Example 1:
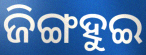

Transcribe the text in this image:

ଜିଙ୍ଗହୁଇ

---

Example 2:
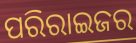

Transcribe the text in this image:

ପରିରାଇଜର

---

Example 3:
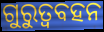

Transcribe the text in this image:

ଗୁରୁତ୍ୱବହନ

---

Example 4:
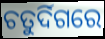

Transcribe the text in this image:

ଚତୁର୍ଦିଗରେ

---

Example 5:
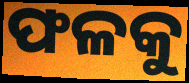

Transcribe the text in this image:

ଫଳକୁ